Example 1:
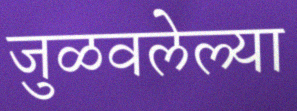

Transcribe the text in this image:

जुळवलेल्या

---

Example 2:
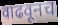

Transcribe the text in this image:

वाढवूनच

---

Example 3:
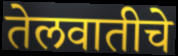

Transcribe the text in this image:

तेलवातीचे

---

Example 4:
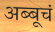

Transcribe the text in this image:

अब्बूचं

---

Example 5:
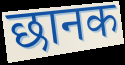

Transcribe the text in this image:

छानक